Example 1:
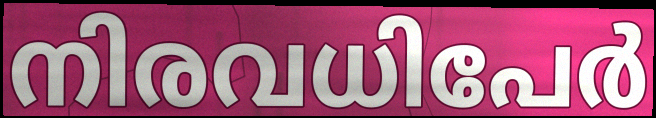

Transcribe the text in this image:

നിരവധിപേർ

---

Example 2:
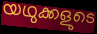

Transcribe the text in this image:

യഥുക്കളുടെ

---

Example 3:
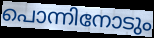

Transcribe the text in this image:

പൊന്നിനോടും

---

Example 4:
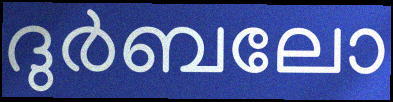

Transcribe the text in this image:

ദുർബലോ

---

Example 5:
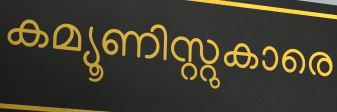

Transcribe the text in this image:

കമ്യൂണിസ്റ്റുകാരെ